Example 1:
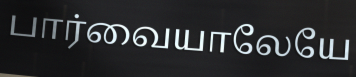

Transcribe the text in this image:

பார்வையாலேயே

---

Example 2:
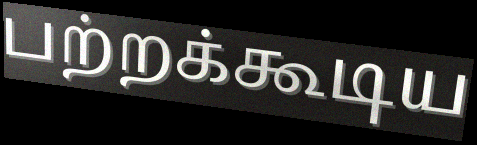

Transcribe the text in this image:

பற்றக்கூடிய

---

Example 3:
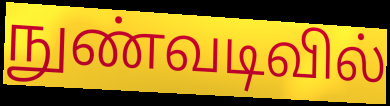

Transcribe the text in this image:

நுண்வடிவில்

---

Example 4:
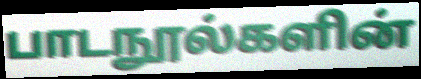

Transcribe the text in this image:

பாடநூல்களின்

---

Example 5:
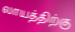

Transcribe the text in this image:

லாயத்திற்கு